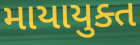
માયાયુક્ત